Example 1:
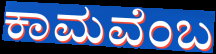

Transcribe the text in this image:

ಕಾಮವೆಂಬ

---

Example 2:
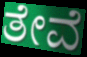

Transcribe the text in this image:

ತೇವೆ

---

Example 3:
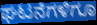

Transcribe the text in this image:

ಘಟನೆಗಳಿಗೂ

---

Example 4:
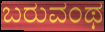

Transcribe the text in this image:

ಬರುವಂಥ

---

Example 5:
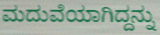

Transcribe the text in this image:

ಮದುವೆಯಾಗಿದ್ದನ್ನು